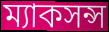
ম্যাকসন্স